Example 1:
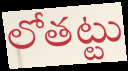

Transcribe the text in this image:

లోతట్టు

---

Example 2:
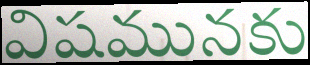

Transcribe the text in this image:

విషమునకు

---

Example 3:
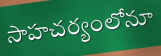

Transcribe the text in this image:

సాహచర్యంలోనూ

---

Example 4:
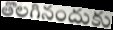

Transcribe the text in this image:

తొలగినందుకు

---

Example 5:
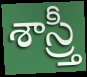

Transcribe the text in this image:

శాస్ర్తీ